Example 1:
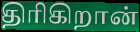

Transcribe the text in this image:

திரிகிறான்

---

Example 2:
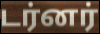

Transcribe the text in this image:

டர்னர்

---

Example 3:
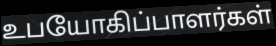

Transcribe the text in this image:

உபயோகிப்பாளர்கள்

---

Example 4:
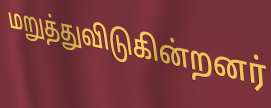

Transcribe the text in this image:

மறுத்துவிடுகின்றனர்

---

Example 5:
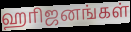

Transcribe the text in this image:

ஹரிஜனங்கள்